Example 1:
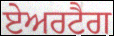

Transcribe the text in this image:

ਏਅਰਟੈਗ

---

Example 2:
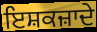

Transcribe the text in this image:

ਇਸ਼ਕਜ਼ਾਦੇ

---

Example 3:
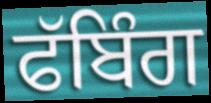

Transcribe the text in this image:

ਫੱਬਿੰਗ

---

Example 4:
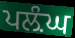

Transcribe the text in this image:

ਪਲ਼ੰਘ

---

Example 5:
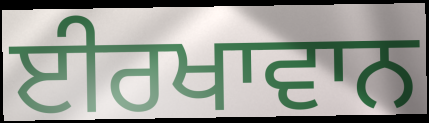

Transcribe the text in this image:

ਈਰਖਾਵਾਨ